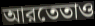
আরতেতাও